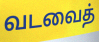
வடவைத்